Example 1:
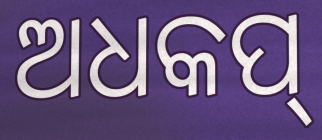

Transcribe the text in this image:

ଅଧକପ୍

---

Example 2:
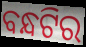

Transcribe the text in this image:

ବନ୍ଧଟିର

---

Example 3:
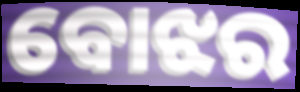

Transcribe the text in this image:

ବୋଝର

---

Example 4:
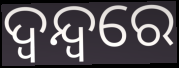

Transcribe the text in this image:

ଦ୍ୱନ୍ଦ୍ବରେ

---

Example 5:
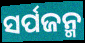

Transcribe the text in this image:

ସର୍ପଜନ୍ମ